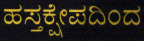
ಹಸ್ತಕ್ಷೇಪದಿಂದ